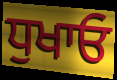
ਧੁਖਾਓ